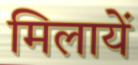
मिलायें